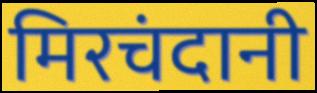
मिरचंदानी